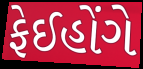
ફેઈહોંગે